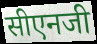
सीएनजी